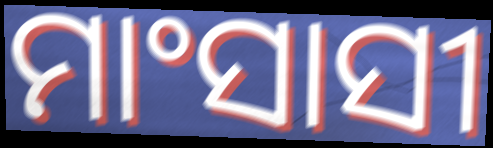
ମାଂସାସୀ